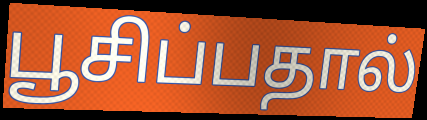
பூசிப்பதால்